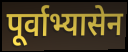
पूर्वाभ्यासेन